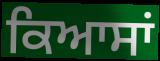
ਕਿਆਸਾਂ